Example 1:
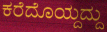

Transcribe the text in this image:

ಕರೆದೊಯ್ದದ್ದು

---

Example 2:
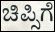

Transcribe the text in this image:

ಚಿಪ್ಸಿಗೆ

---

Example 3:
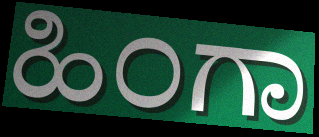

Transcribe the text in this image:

ಹಿಂಗಾ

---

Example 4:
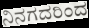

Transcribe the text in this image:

ನಿನಗದರಿಂದ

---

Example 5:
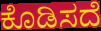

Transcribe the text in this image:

ಕೊಡಿಸದೆ